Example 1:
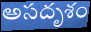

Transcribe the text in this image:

అసదృశం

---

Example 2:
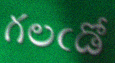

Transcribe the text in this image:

గలఁడో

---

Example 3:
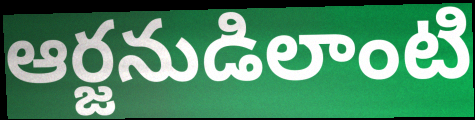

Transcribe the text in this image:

ఆర్జనుడిలాంటి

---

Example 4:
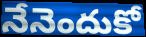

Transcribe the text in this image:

నేనెందుకో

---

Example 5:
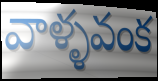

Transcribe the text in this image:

వాళ్ళవంక